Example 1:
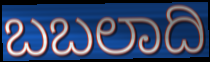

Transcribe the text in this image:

ಬಬಲಾದಿ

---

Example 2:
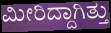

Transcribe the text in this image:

ಮೀರಿದ್ದಾಗಿತ್ತು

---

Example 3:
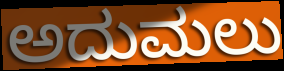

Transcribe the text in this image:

ಅದುಮಲು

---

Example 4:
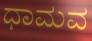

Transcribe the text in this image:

ಧಾಮವ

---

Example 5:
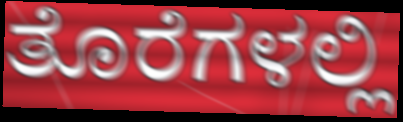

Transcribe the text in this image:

ತೊರೆಗಳಲ್ಲಿ